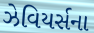
ઝેવિયર્સના